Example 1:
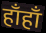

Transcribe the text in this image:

हाँहाँ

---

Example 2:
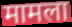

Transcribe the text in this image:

मामला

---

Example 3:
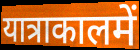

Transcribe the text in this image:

यात्राकालमें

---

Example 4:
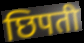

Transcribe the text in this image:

छिपती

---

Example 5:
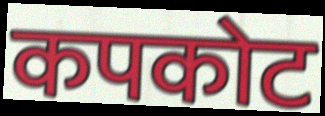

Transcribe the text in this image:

कपकोट